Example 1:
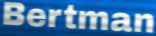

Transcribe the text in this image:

Bertman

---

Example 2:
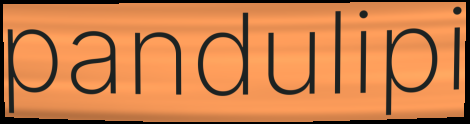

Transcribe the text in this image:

pandulipi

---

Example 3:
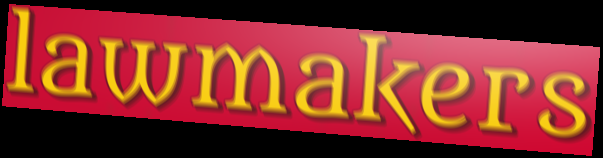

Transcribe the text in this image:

lawmakers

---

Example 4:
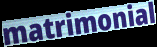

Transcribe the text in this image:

matrimonial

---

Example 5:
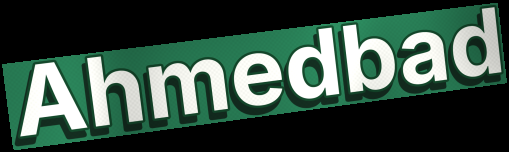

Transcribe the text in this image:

Ahmedbad